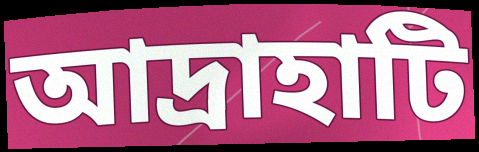
আদ্রাহাটি